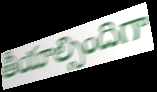
తీయాల్సిందిగా